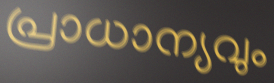
പ്രാധാന്യവും